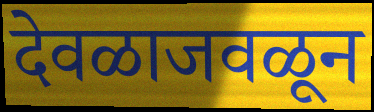
देवळाजवळून